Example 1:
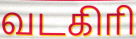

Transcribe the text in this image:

வடகிரி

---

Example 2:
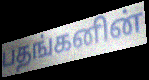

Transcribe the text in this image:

பதங்கனின்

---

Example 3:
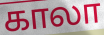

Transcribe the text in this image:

காலா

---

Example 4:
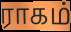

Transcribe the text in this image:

ராகம்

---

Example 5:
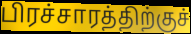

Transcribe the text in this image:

பிரச்சாரத்திற்குச்